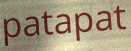
patapat